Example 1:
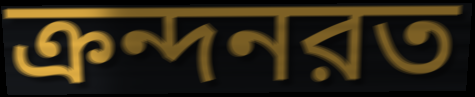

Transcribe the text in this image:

ক্রন্দনরত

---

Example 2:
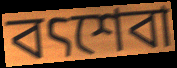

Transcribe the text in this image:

বৎশেবা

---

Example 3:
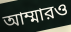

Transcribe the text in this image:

আম্মারও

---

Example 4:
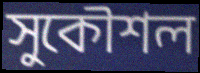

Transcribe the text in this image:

সুকৌশল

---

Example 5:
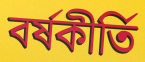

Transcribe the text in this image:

বর্ষকীর্তি